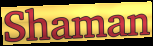
Shaman